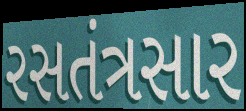
રસતંત્રસાર